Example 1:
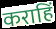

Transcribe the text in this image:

कराहिं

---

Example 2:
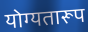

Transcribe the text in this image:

योग्यतारूप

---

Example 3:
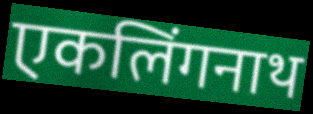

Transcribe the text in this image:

एकलिंगनाथ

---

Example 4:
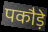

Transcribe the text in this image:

पकौड़े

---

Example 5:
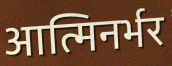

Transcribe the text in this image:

आत्मिनर्भर